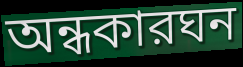
অন্ধকারঘন